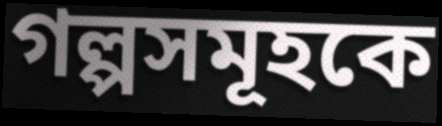
গল্পসমূহকে